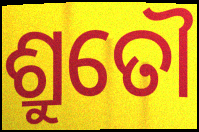
ଶ୍ରୁତୌ